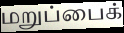
மறுப்பைக்